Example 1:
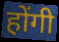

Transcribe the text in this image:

होंगी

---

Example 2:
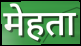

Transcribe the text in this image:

मेहता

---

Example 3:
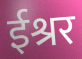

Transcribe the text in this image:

ईश्रर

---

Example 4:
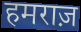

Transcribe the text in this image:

हमराज़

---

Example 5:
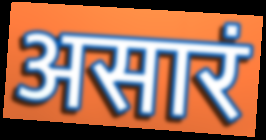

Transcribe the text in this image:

असारं